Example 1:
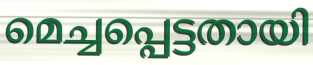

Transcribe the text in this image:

മെച്ചപ്പെട്ടതായി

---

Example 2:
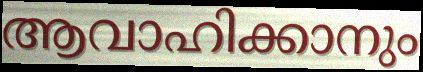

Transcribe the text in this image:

ആവാഹിക്കാനും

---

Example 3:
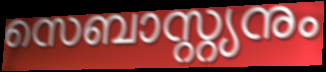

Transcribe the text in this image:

സെബാസ്റ്റ്യനും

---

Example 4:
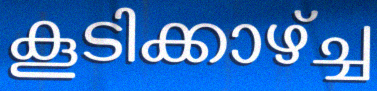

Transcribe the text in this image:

കൂടിക്കാഴ്ച്ച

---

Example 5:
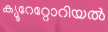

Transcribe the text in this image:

ക്യൂറേറ്റോറിയൽ